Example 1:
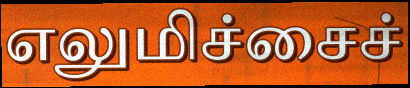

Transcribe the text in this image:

எலுமிச்சைச்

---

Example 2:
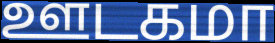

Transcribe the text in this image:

ஊடகமா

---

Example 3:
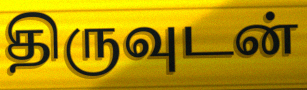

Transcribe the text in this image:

திருவுடன்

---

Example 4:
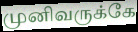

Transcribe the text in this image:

முனிவருக்கே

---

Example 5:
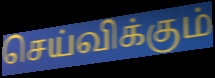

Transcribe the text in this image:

செய்விக்கும்